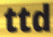
ttd